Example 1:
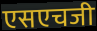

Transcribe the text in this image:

एसएचजी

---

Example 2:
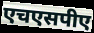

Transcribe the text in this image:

एचएसपीए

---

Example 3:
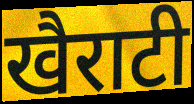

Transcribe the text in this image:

खैराटी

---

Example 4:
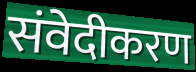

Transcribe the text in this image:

संवेदीकरण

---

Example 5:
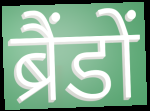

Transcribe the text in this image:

ब्रैंडों